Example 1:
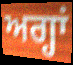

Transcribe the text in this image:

ਅਗ੍ਹਾਂ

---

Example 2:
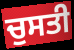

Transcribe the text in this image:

ਚੁਸਤੀ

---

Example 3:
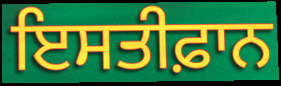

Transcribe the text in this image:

ਇਸਤੀਫ਼ਾਨ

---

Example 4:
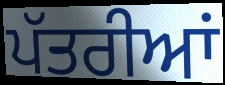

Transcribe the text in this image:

ਪੱਤਰੀਆਂ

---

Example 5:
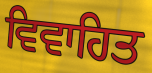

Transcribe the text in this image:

ਵਿਵਾਹਿਤ